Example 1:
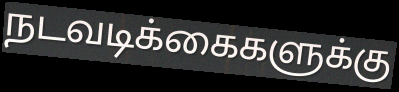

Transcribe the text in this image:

நடவடிக்கைகளுக்கு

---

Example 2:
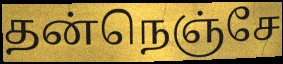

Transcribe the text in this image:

தன்நெஞ்சே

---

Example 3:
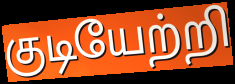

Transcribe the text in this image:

குடியேற்றி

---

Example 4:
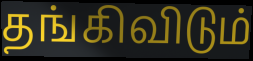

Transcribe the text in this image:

தங்கிவிடும்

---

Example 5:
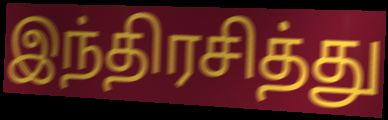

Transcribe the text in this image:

இந்திரசித்து